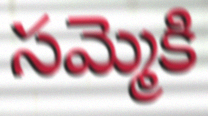
సమ్మెకి